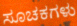
ಸೂಚಕಗಳು